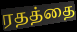
ரதத்தை